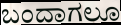
ಬಂದಾಗಲೂ